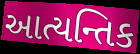
આત્યન્તિક